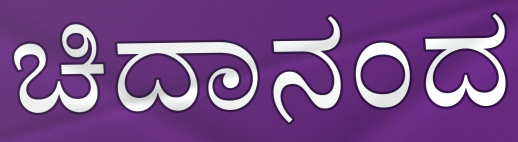
ಚಿದಾನಂದ